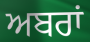
ਅਬਰਾਂ